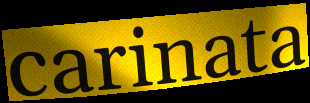
carinata